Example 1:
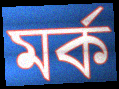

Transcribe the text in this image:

মর্ক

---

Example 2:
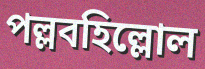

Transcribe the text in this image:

পল্লবহিল্লোল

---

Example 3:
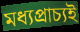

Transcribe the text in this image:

মধ্যপ্রাচ্যই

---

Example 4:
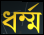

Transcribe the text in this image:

ধর্ম্ম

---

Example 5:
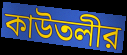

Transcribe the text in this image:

কাউতলীর